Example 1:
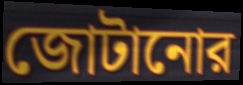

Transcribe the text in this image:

জোটানোর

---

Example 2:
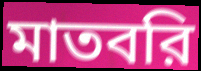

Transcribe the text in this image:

মাতবরি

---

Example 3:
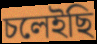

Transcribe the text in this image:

চলেইছি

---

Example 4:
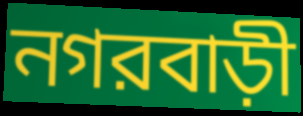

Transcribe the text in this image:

নগরবাড়ী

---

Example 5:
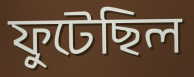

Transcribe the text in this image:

ফুটেছিল